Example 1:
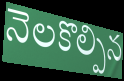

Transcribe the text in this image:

నెలకొల్పిన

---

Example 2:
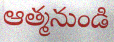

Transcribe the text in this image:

ఆత్మనుండి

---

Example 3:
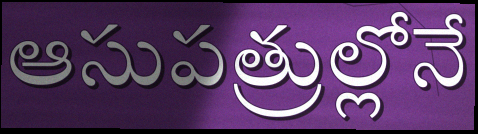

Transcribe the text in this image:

ఆసుపత్రుల్లోనే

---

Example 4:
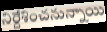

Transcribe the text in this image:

నిర్దేశించనున్నాయి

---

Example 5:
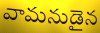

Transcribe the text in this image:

వామనుడైన